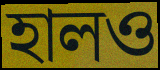
হালও